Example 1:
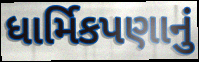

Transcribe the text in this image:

ધાર્મિકપણાનું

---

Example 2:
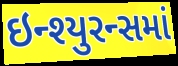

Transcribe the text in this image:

ઇન્શ્યુરન્સમાં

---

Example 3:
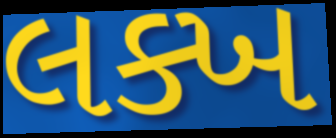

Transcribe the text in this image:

લક્ખ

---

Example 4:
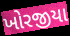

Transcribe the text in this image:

ખોરજીયા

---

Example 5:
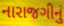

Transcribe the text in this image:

નારાજગીનું